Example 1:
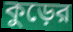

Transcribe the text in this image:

কুড়ের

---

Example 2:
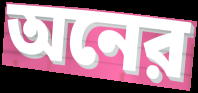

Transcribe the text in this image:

অনের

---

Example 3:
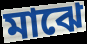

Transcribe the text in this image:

মাঝে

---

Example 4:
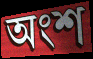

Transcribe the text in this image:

অংশ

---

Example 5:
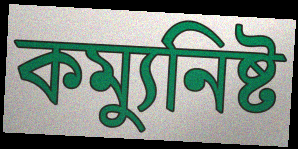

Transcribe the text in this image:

কম্যুনিষ্ট